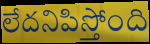
లేదనిపిస్తోంది